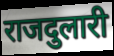
राजदुलारी